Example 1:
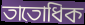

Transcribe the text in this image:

তাতোধিক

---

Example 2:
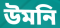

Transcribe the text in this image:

উমনি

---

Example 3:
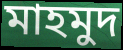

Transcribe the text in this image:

মাহমুদ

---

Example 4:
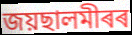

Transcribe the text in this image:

জয়ছালমীৰৰ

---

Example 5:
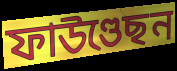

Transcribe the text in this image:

ফাউণ্ডেছন